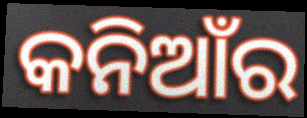
କନିଆଁର